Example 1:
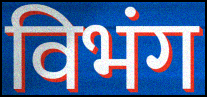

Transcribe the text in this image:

विभंग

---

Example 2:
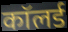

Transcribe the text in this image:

कॉलर्ड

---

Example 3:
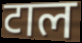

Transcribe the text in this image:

टाल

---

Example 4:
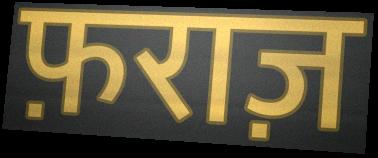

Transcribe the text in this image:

फ़राज़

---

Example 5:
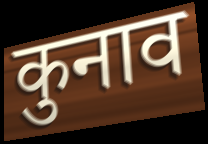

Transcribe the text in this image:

कुनाव